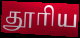
தூரிய